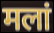
मलां